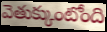
వెతుక్కుంటోంది